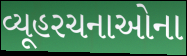
વ્યૂહરચનાઓના